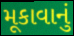
મૂકાવાનું